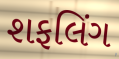
શફલિંગ